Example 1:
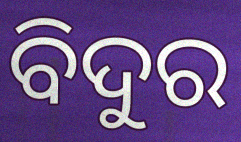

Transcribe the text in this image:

ବିଦୁର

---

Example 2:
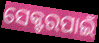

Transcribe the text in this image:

ସେକ୍ଟରପାଇଁ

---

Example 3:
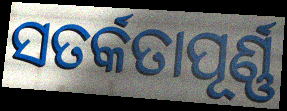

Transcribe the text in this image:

ସତର୍କତାପୂର୍ଣ୍ଣ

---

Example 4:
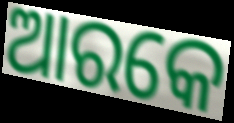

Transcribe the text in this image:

ଆରକେ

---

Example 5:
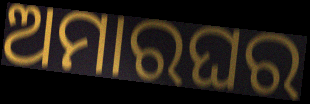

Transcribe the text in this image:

ଅମାରଘର